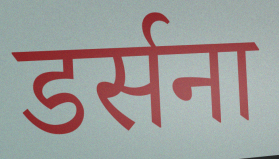
डर्सना